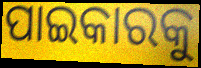
ପାଇକାରକୁ